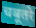
चबूतरे